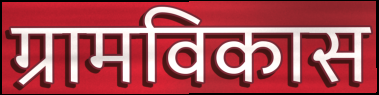
ग्रामविकास